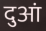
दुआं